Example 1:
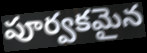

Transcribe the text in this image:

పూర్వకమైన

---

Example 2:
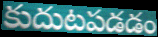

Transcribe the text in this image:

కుదుటపడడం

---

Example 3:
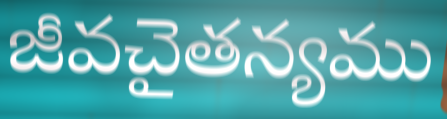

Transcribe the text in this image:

జీవచైతన్యము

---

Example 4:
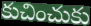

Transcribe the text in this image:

కుచించుకు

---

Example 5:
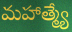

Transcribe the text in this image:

మహాత్మ్యే